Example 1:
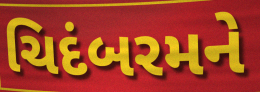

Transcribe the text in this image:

ચિદંબરમને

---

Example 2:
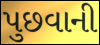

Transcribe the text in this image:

પુછવાની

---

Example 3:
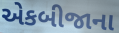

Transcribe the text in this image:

એકબીજાના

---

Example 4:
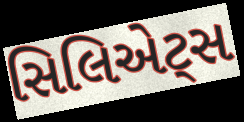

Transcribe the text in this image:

સિલિએટ્સ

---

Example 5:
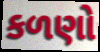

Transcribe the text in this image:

કળણો